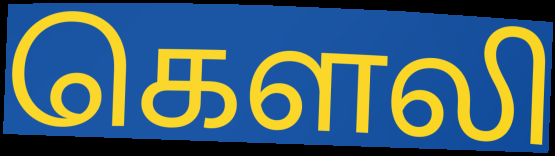
கௌலி